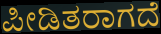
ಪೀಡಿತರಾಗದೆ